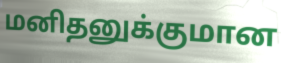
மனிதனுக்குமான